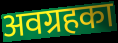
अवग्रहका